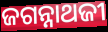
ଜଗନ୍ନାଥଜୀ